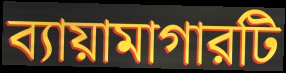
ব্যায়ামাগারটি